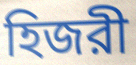
হিজরী